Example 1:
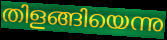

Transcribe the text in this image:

തിളങ്ങിയെന്നു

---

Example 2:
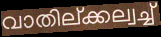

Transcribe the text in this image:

വാതില്ക്കല്വച്ച്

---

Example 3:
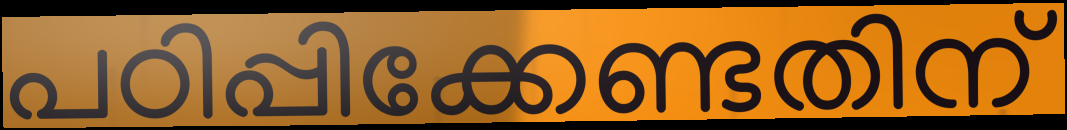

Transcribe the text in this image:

പഠിപ്പിക്കേണ്ടതിന്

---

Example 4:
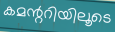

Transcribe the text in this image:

കമന്ററിയിലൂടെ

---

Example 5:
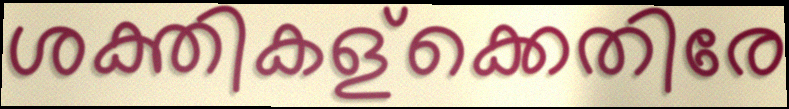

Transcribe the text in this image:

ശക്തികള്ക്കെതിരേ